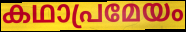
കഥാപ്രമേയം